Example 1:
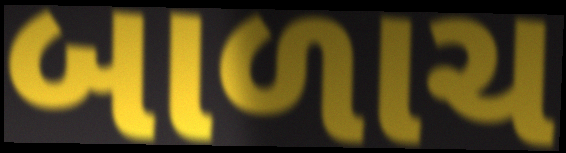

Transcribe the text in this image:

બાળાચ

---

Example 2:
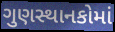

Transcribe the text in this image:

ગુણસ્થાનકોમાં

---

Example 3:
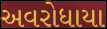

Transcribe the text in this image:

અવરોધાયા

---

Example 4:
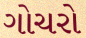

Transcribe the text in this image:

ગોચરો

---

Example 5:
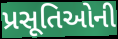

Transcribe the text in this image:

પ્રસૂતિઓની